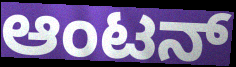
ಆಂಟನ್